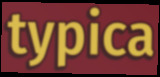
typica